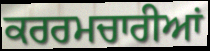
ਕਰਰਮਚਾਰੀਆਂ